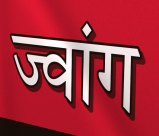
ज्वांग